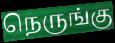
நெருங்கு